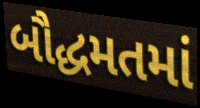
બૌદ્ધમતમાં